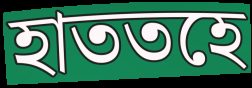
হাততহে